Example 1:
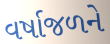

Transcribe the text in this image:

વર્ષાજળને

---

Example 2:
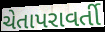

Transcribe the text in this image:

ચેતાપરાવર્તી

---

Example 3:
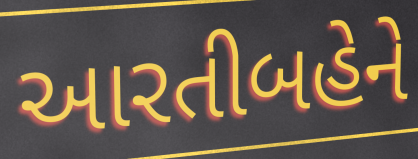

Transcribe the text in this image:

આરતીબહેને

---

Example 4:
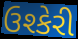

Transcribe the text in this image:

ઉશ્કેરી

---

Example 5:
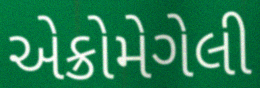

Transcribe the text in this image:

એક્રોમેગેલી